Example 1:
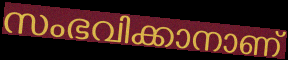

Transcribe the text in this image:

സംഭവിക്കാനാണ്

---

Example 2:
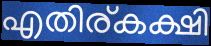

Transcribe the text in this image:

എതിര്കക്ഷി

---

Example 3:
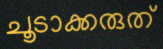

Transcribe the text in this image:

ചൂടാക്കരുത്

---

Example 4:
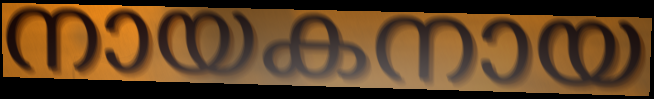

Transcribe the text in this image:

നായകനായ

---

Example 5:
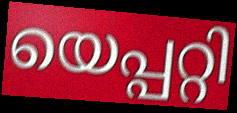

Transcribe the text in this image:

യെപ്പറ്റി